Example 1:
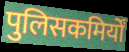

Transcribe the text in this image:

पुलिसकमिर्यों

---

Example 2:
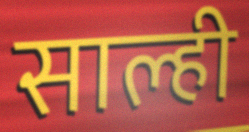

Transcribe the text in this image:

साल्ही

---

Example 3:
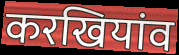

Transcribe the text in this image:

करखियांव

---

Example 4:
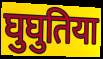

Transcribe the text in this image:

घुघुतिया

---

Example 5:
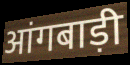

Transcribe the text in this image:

आंगबाड़ी